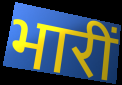
भारीं